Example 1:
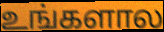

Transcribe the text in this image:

உங்களால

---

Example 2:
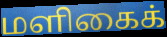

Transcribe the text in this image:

மளிகைக்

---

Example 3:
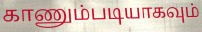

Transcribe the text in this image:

காணும்படியாகவும்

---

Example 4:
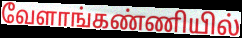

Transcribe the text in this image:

வேளாங்கண்ணியில்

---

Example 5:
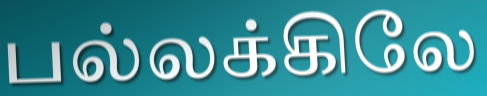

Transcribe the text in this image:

பல்லக்கிலே